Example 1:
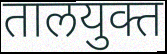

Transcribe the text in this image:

तालयुक्त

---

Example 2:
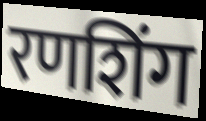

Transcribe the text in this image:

रणशिंग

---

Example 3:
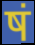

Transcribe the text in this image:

षं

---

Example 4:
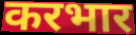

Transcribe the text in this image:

करभार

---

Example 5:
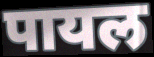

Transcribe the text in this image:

पायल